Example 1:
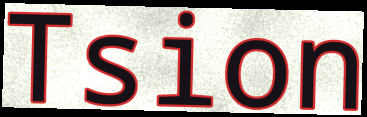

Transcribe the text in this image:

Tsion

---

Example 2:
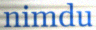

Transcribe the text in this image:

nimdu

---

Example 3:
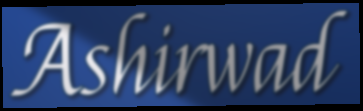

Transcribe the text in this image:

Ashirwad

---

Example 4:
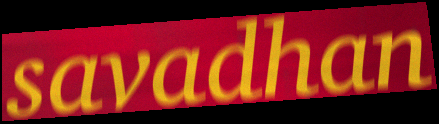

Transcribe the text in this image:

savadhan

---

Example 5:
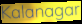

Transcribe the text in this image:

Kalanagar